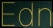
Edn